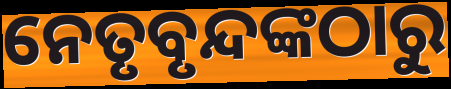
ନେତୃବୃନ୍ଦଙ୍କଠାରୁ